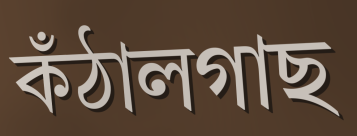
কঁঠালগাছ